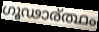
ഗൂഢാര്ത്ഥം